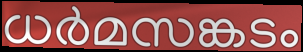
ധർമസങ്കടം